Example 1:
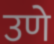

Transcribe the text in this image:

उणे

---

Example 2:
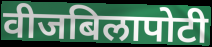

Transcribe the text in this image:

वीजबिलापोटी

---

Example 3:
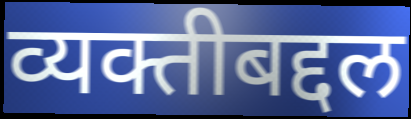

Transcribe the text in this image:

व्यक्तीबद्दल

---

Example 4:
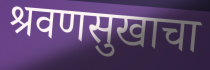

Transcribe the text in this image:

श्रवणसुखाचा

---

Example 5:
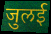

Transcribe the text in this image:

जुलई